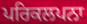
ਪਰਿਕਲਪਨਾ